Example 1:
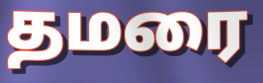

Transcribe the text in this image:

தமரை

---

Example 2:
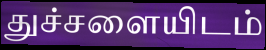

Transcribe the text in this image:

துச்சளையிடம்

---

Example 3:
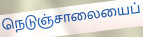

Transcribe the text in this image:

நெடுஞ்சாலையைப்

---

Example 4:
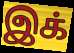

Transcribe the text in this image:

இக்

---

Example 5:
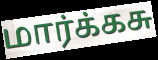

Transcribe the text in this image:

மார்க்கசு